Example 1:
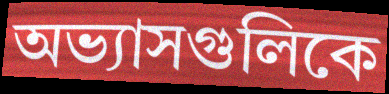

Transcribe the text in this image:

অভ্যাসগুলিকে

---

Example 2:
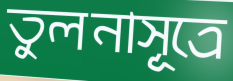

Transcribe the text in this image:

তুলনাসূত্রে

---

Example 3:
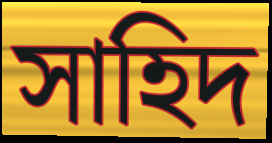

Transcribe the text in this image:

সাহিদ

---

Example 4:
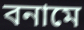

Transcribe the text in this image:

বনামে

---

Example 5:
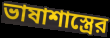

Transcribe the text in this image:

ভাষাশাস্ত্রের